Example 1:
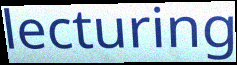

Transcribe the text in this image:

lecturing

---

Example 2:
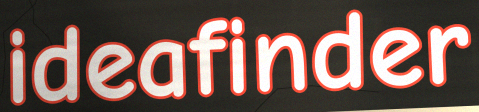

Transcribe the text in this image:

ideafinder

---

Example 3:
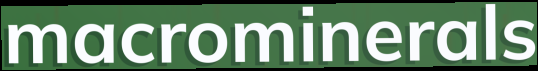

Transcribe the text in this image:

macrominerals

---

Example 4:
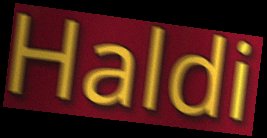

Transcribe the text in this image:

Haldi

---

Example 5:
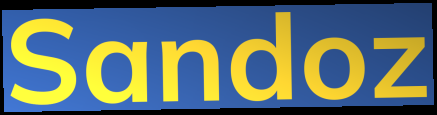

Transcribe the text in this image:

Sandoz